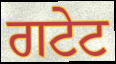
ਗਟੇਟ